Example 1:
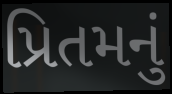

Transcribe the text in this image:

પ્રિતમનું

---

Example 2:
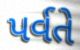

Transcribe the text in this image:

પર્વતે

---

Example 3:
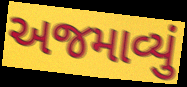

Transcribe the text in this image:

અજમાવ્યું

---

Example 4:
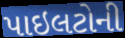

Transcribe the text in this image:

પાઇલટોની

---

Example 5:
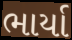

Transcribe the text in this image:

ભાર્યા